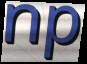
np